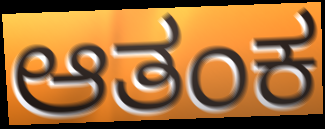
ಆತಂಕ